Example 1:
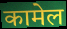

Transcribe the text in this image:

कामेल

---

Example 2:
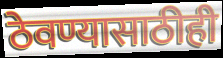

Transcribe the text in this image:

ठेवण्यासाठीही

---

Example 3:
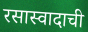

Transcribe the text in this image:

रसास्वादाची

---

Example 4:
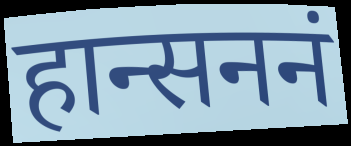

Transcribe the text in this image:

हान्सननं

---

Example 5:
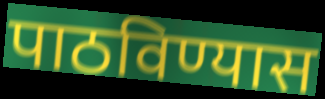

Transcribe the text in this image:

पाठविण्यास